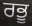
ਰਭੂ